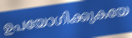
ഉപയോഗിക്കുകയേ